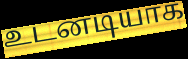
உடனடியாக